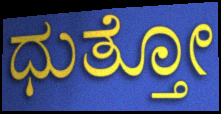
ಧುತ್ತೋ